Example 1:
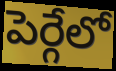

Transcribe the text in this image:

పెర్గేలో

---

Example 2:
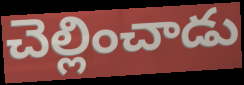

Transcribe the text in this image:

చెల్లించాడు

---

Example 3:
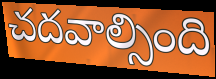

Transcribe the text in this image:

చదవాల్సింది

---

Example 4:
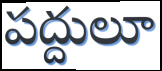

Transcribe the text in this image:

పద్దులూ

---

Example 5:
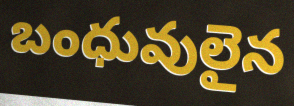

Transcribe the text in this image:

బంధువులైన